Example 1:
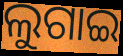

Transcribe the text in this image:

ଲୁଗାଇ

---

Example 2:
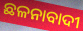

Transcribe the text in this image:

ଛଳନାବାଦୀ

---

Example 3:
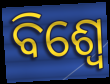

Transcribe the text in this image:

ବିଶ୍ଵେ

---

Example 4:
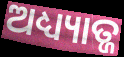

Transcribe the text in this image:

ଅଧ୍ୟ୍ୟାତ୍ଜ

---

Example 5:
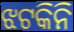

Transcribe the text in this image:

ଝଟକିନି